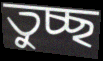
তুচ্ছ